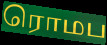
ரொமப